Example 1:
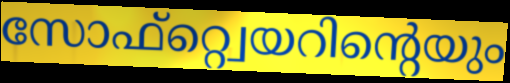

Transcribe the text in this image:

സോഫ്റ്റ്വെയറിന്റെയും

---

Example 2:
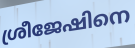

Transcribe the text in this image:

ശ്രീജേഷിനെ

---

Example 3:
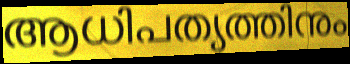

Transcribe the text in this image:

ആധിപത്യത്തിനും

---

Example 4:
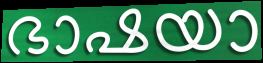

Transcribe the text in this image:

ഭാഷയാ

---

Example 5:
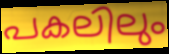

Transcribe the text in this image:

പകലിലും